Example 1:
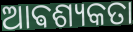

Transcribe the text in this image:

ଆଵଶ୍ୟକତା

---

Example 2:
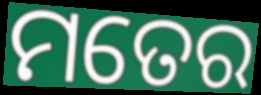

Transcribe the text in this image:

ମତେର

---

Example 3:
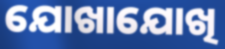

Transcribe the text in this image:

ଯୋଖାଯୋଖି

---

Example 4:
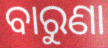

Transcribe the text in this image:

ବାରୁଣା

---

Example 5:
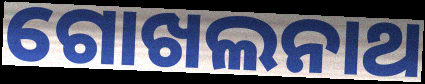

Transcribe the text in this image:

ଗୋଖଲନାଥ